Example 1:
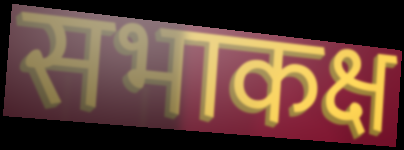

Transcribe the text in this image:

सभाकक्ष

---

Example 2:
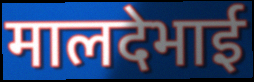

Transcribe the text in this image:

मालदेभाई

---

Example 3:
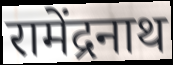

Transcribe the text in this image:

रामेंद्रनाथ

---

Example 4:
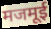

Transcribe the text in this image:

मजमूई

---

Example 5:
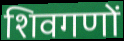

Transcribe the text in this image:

शिवगणों